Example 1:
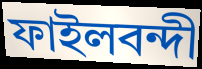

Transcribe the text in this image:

ফাইলবন্দী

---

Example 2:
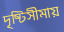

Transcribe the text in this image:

দৃষ্টিসীমায়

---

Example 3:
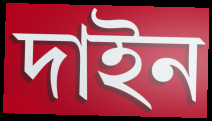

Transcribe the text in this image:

দাইন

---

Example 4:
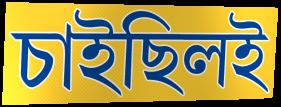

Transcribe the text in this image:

চাইছিলই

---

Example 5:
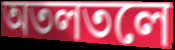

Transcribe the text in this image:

অতলতলে